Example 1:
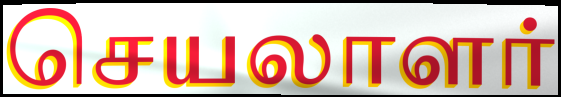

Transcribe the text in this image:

செயலாளர்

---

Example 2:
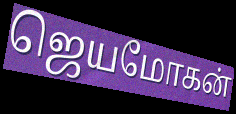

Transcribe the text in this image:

ஜெயமோகன்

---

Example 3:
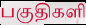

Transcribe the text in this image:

பகுதிகளி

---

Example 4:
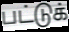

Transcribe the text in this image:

பட்டுக்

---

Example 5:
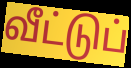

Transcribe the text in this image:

வீட்டுப்